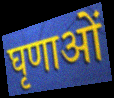
घृणाओं